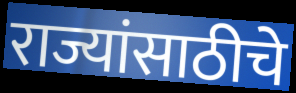
राज्यांसाठीचे